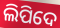
ଲିପିଦେ